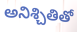
అనిశ్చితితో